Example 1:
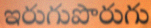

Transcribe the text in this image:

ఇరుగుపొరుగు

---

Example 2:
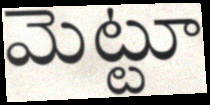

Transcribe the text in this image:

మెట్టూ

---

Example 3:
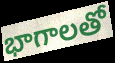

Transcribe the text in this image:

భాగాలతో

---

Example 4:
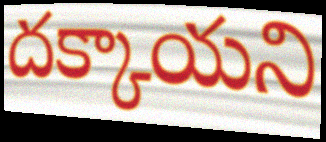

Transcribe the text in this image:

దక్కాయని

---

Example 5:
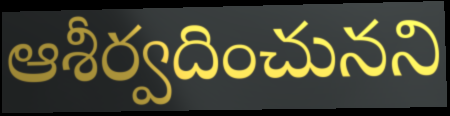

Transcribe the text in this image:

ఆశీర్వదించునని